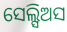
ସେଲ୍ସିଅସ